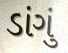
ડાંગું